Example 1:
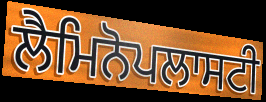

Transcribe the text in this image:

ਲੈਮਿਨੋਪਲਾਸਟੀ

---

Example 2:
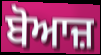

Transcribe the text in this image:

ਬੋਆਜ਼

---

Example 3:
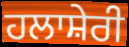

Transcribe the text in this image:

ਹਲਾਸ਼ੇਰੀ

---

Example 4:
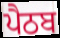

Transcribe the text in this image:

ਪੈਠਬ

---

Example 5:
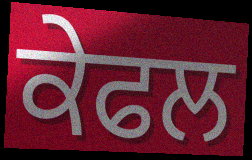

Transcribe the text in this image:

ਕੇਫਲ